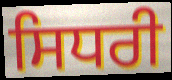
ਸਿਧਰੀ